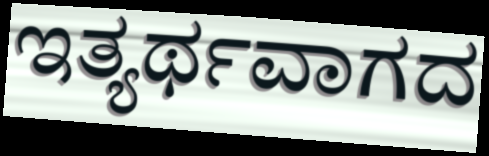
ಇತ್ಯರ್ಥವಾಗದ